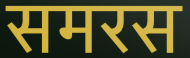
समरस